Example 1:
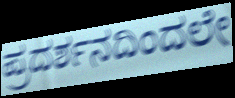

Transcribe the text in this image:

ಪ್ರದರ್ಶನದಿಂದಲೇ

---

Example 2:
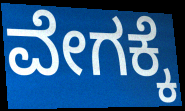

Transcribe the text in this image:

ವೇಗಕ್ಕೆ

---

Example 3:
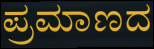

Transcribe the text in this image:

ಪ್ರಮಾಣದ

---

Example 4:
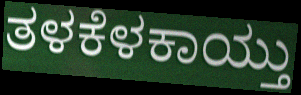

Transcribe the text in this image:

ತಳಕೆಳಕಾಯ್ತು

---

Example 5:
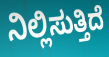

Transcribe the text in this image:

ನಿಲ್ಲಿಸುತ್ತಿದೆ